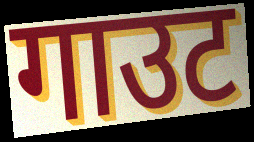
गाउट